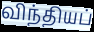
விந்தியப்